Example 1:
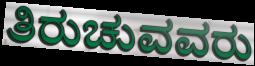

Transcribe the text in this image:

ತಿರುಚುವವರು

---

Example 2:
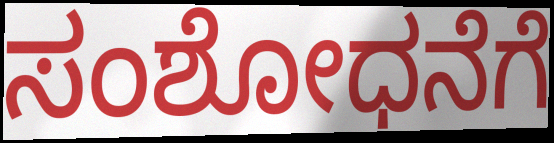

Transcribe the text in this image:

ಸಂಶೋಧನೆಗೆ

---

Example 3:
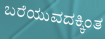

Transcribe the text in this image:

ಬರೆಯುವದಕ್ಕಿಂತ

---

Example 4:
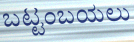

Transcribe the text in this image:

ಬಟ್ಟಂಬಯಲು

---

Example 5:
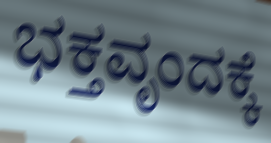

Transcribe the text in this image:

ಭಕ್ತವೃಂದಕ್ಕೆ